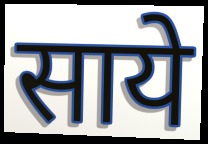
साये